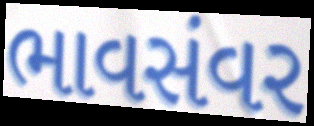
ભાવસંવર